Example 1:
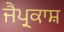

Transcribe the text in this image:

ਜੈਪ੍ਰਕਾਸ਼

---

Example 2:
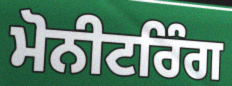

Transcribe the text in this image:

ਮੋਨੀਟਰਿੰਗ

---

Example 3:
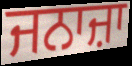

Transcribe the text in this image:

ਜਨਾਜ਼ਾ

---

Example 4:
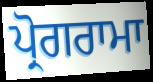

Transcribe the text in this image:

ਪ੍ਰੋਗਰਾਮਾ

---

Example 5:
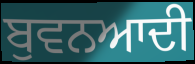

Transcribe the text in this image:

ਬੁਵਨਆਦੀ